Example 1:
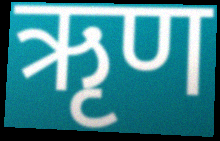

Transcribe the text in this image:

ऋृण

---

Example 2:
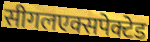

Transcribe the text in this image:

सीगलएक्सपेक्टेड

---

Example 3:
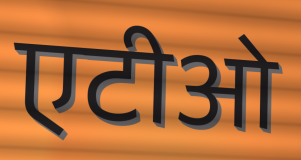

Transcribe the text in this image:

एटीओ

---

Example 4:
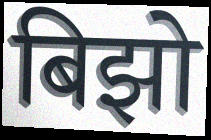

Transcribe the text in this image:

बिझो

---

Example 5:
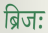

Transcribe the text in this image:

ब्रिजः